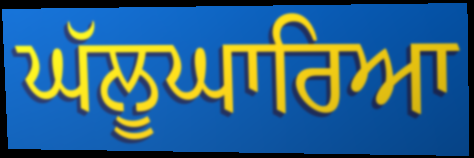
ਘੱਲੂਘਾਰਿਆ